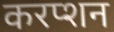
करप्शन